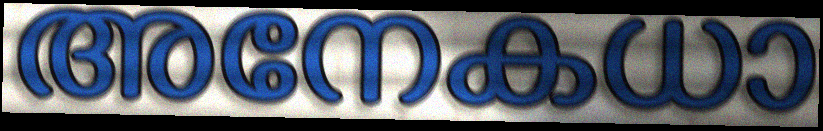
അനേകധാ